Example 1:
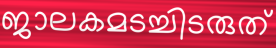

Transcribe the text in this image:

ജാലകമടച്ചിടരുത്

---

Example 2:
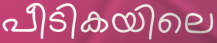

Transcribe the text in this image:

പീടികയിലെ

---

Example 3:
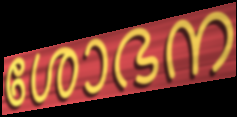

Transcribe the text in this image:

ശോഭന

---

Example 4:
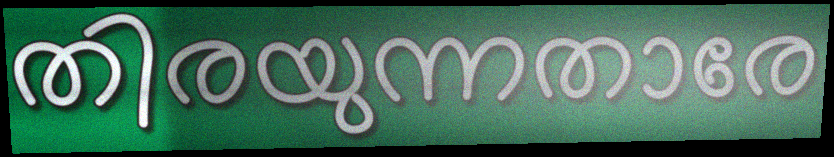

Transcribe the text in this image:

തിരയുന്നതാരേ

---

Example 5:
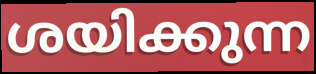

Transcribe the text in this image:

ശയിക്കുന്ന